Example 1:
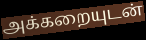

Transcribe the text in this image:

அக்கறையுடன்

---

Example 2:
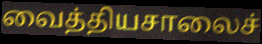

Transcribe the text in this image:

வைத்தியசாலைச்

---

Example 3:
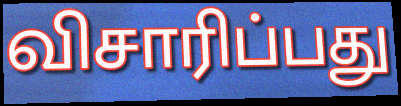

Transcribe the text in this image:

விசாரிப்பது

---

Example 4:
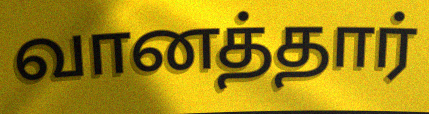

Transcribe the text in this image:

வானத்தார்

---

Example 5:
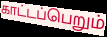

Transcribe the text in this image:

காட்டப்பெறும்